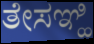
ತೇಸಞ್ಹಿ